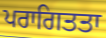
ਪਰਾਗਿਤਤਾ